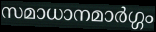
സമാധാനമാർഗ്ഗം